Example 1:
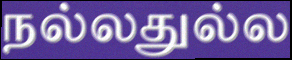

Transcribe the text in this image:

நல்லதுல்ல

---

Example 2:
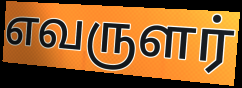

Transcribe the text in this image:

எவருளர்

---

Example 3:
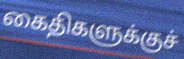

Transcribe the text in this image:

கைதிகளுக்குச்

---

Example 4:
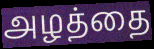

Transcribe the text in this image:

அழத்தை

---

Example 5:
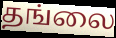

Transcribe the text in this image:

தங்லை